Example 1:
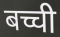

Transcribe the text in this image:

बच्ची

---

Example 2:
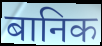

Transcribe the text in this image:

बानिक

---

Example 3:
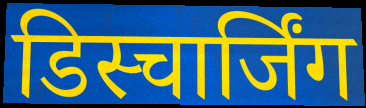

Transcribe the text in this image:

डिस्चार्जिंग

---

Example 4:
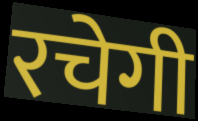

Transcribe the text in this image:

रचेगी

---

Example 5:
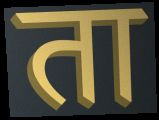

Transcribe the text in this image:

ता